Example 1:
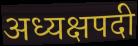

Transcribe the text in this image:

अध्यक्षपदी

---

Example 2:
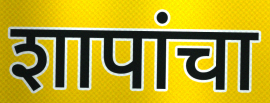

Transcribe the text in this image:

शापांचा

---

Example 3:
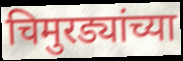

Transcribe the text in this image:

चिमुरड्यांच्या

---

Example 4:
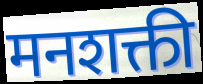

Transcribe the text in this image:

मनशक्ती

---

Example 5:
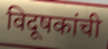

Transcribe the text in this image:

विदूषकांची